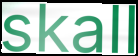
skall